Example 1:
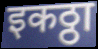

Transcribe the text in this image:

इकठ्ठा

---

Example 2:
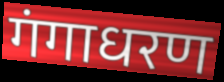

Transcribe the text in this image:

गंगाधरण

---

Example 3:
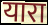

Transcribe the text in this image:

यारा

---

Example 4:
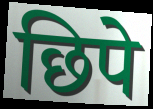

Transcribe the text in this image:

छिपे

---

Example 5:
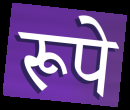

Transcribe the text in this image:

रूपे